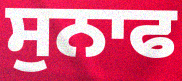
ਸੁਨਾਫ